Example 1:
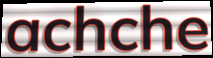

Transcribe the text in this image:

achche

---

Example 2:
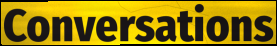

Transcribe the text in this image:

Conversations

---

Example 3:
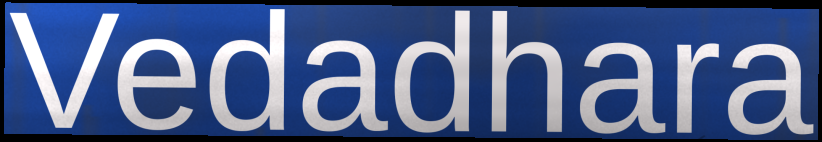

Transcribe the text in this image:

Vedadhara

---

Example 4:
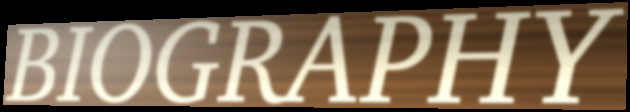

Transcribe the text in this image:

BIOGRAPHY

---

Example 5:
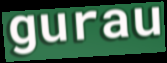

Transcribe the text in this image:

gurau